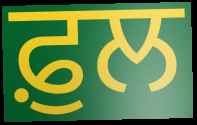
ਫ਼ੁਲ